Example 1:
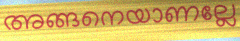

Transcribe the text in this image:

അങ്ങനെയാണല്ലേ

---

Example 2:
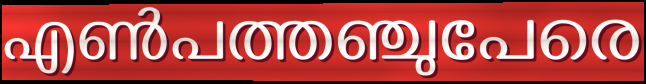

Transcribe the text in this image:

എൺപത്തഞ്ചുപേരെ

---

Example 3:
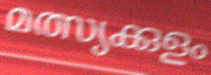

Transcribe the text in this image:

മത്സ്യക്കുളം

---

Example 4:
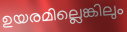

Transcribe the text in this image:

ഉയരമില്ലെങ്കിലും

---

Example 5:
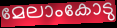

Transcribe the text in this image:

മേലാംകോടു